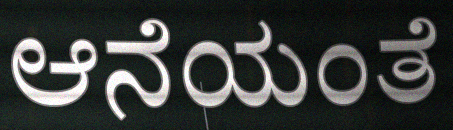
ಆನೆಯಂತೆ